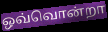
ஒவ்வொன்றா